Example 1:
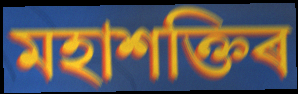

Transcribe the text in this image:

মহাশক্তিৰ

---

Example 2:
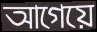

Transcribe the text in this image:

আগেয়ে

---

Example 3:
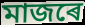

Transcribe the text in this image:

মাজৰে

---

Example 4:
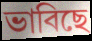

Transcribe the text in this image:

ভাবিছে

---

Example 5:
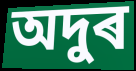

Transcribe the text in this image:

অদুৰ